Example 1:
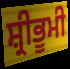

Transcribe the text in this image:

ਸ਼੍ਰੀਭੂਮੀ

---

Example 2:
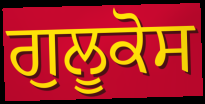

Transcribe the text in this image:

ਗੁਲੂਕੋਸ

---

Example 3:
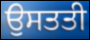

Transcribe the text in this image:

ਉਸਤਤੀ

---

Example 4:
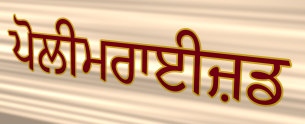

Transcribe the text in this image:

ਪੋਲੀਮਰਾਈਜ਼ਡ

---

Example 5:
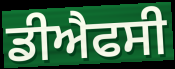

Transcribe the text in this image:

ਡੀਐਫਸੀ